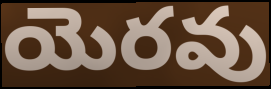
యెరవు